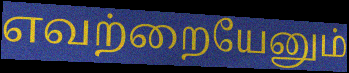
எவற்றையேனும்